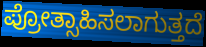
ಪ್ರೋತ್ಸಾಹಿಸಲಾಗುತ್ತದೆ